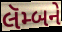
લૅમ્બને